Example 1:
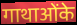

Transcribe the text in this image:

गाथाओंके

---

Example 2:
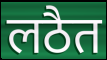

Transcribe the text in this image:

लठैत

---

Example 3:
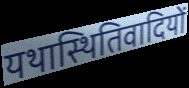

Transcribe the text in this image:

यथास्थितिवादियों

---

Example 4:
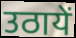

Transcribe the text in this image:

उठायें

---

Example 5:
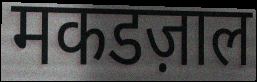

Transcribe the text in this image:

मकडज़ाल